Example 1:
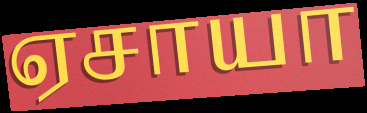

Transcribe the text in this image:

ஏசாயா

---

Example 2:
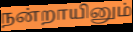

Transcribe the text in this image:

நன்றாயினும்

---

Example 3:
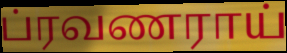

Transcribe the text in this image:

ப்ரவணராய்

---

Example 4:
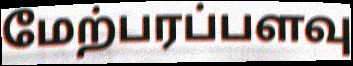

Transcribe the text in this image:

மேற்பரப்பளவு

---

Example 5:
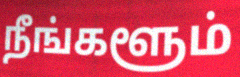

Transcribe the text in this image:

நீங்களூம்